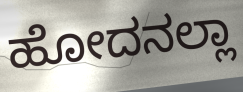
ಹೋದನಲ್ಲಾ